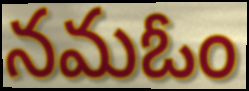
నమఓం